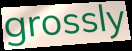
grossly